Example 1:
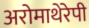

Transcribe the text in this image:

अरोमाथेरेपी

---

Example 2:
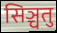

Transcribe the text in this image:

सिञ्चतु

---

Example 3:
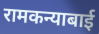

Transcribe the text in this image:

रामकन्याबाई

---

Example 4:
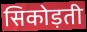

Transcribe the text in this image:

सिकोड़ती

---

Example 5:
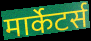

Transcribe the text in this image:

मार्केटर्स